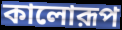
কালোরূপ